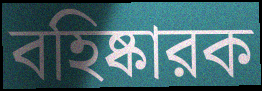
বহিষ্কারক